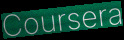
Coursera